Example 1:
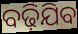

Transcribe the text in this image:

ବଢ଼ିଯିବ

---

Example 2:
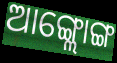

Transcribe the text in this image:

ଆଙ୍ଗ୍ଲୋଙ୍ଗ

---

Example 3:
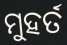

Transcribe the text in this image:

ମୁହର୍ତ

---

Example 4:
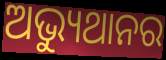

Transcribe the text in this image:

ଅଭ୍ୟୁଥାନର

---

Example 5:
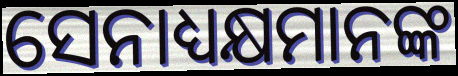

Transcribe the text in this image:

ସେନାଧ୍ୟକ୍ଷମାନଙ୍କ